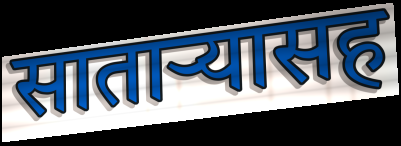
साताऱ्यासह